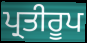
ਪ੍ਰਤੀਰੂਪ